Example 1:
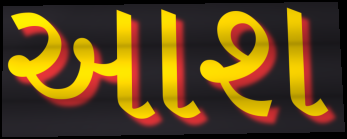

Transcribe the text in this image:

આશ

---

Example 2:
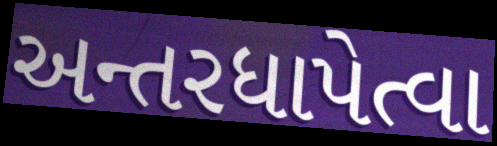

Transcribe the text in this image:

અન્તરધાપેત્વા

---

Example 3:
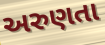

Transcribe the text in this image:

અરુણતા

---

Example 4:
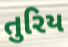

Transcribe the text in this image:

તુરિય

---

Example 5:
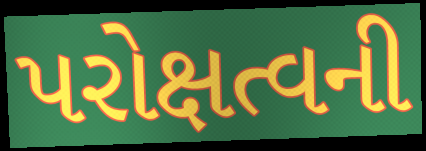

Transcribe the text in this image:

પરોક્ષત્વની